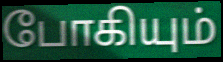
போகியும்